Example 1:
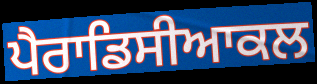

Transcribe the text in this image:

ਪੈਰਾਡਿਸੀਆਕਲ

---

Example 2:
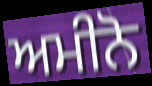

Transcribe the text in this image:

ਅਮੀਨੋ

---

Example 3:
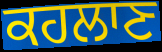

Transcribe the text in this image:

ਕਹਲਾਣ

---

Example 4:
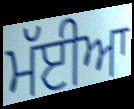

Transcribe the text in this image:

ਮੱਈਆ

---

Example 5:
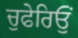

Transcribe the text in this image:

ਚੁਫੇਰਿਓੁਂ